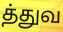
த்துவ